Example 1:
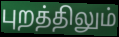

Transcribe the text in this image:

புறத்திலும்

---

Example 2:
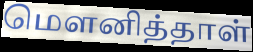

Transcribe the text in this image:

மௌனித்தாள்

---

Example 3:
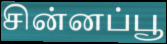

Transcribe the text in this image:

சின்னப்பூ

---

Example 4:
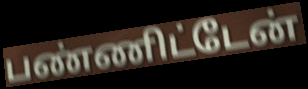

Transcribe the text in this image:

பண்ணிட்டேன்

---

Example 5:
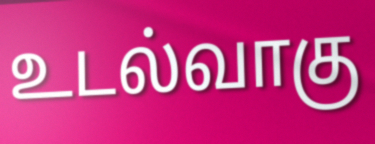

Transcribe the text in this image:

உடல்வாகு